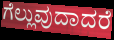
ಗೆಲ್ಲುವುದಾದರೆ